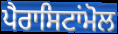
ਪੈਰਾਸਿਟਾਂਮੋਲ